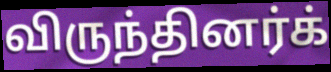
விருந்தினர்க்